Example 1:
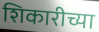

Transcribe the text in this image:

शिकारीच्या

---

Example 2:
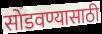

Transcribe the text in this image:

सोडवण्यासाठी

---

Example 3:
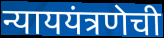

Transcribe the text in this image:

न्याययंत्रणेची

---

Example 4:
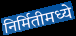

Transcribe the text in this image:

निर्मितीमध्ये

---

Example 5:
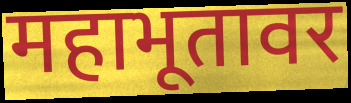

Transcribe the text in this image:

महाभूतावर